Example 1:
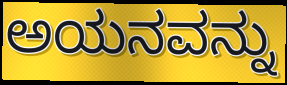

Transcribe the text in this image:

ಅಯನವನ್ನು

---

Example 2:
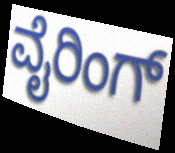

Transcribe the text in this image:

ವೈರಿಂಗ್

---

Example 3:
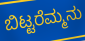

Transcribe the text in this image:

ಬಿಟ್ಟರೆಮ್ಮನು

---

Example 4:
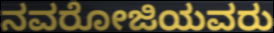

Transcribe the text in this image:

ನವರೋಜಿಯವರು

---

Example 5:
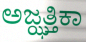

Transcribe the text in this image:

ಅಜ್ಝತ್ತಿಕಾ